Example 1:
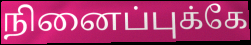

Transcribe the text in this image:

நினைப்புக்கே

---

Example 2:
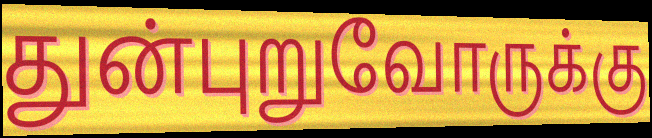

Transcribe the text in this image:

துன்புறுவோருக்கு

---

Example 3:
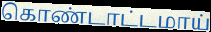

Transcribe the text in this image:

கொண்டாட்டமாய்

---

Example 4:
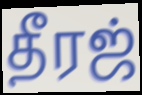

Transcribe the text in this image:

தீரஜ்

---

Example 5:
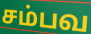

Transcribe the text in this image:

சம்பவ